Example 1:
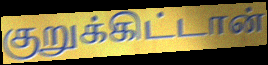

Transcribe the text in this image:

குறுக்கிட்டான்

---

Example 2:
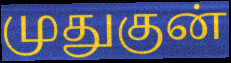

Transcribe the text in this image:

முதுகுன்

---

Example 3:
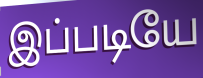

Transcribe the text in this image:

இப்படியே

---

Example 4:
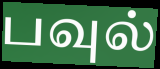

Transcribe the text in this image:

பவுல்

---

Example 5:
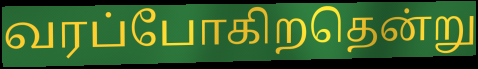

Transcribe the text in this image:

வரப்போகிறதென்று